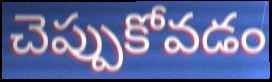
చెప్పుకోవడం